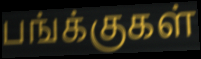
பங்க்குகள்